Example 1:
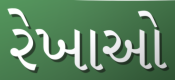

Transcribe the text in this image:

રેખાઓ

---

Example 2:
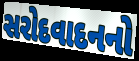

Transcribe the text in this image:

સરોદવાદનનો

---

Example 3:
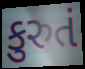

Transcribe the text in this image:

કુરુતં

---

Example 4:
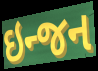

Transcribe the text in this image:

ઇન્જન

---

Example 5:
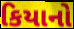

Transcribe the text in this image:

કિયાનો